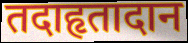
तदाहृतादान